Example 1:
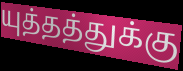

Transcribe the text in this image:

யுத்தத்துக்கு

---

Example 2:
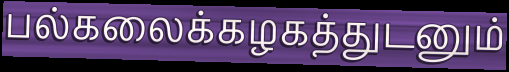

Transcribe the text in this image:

பல்கலைக்கழகத்துடனும்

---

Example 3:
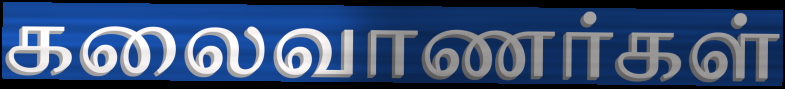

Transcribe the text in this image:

கலைவாணர்கள்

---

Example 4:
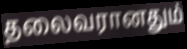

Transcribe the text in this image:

தலைவரானதும்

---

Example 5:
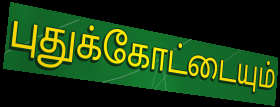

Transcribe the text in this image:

புதுக்கோட்டையும்